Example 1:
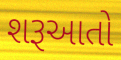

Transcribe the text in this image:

શરૂઆતો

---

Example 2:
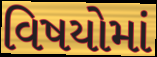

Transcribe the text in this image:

વિષયોમાં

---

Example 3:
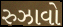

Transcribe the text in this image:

રુઝાવો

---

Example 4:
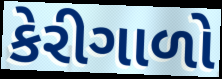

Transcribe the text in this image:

કેરીગાળો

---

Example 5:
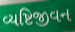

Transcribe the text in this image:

વ્યષ્ટિજીવન